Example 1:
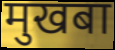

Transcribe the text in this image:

मुखबा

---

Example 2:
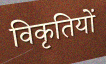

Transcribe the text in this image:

विकृतियों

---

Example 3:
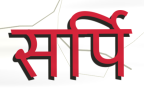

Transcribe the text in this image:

सर्पि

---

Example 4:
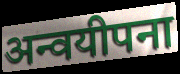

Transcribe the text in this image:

अन्वयीपना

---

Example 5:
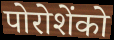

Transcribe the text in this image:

पोरोशेंको